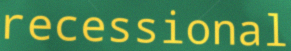
recessional